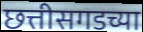
छत्तीसगडच्या